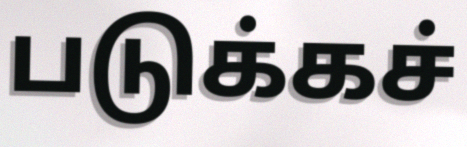
படுக்கச்